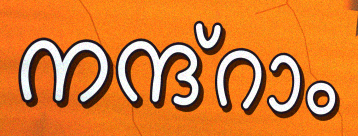
നന്ദ്റാം